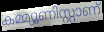
കമ്മ്യൂണിസ്റ്റാണ്